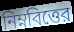
নিম্নবিত্তের